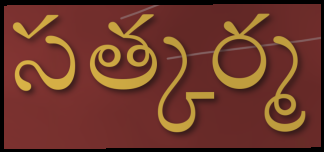
సత్కర్మ